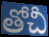
తోచీ